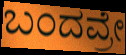
ಬಂದವ್ರೇ